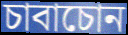
চাবাচোন